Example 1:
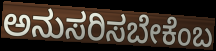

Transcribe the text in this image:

ಅನುಸರಿಸಬೇಕೆಂಬ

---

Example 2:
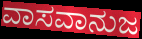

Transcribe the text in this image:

ವಾಸವಾನುಜ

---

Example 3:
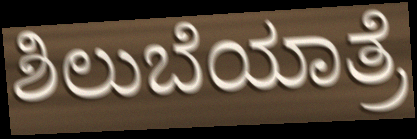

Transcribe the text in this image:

ಶಿಲುಬೆಯಾತ್ರೆ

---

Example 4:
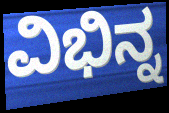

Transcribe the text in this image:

ವಿಭಿನ್ನ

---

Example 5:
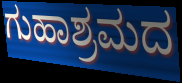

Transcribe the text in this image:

ಗುಹಾಶ್ರಮದ